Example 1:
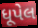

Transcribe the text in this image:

ધૂપેલ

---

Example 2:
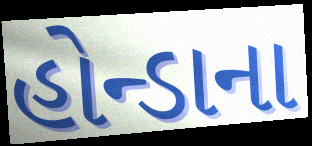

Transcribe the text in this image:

હોન્ડાના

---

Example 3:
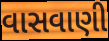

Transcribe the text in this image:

વાસવાણી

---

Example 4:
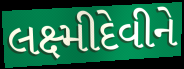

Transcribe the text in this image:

લક્ષ્મીદેવીને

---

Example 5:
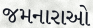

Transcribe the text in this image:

જમનારાઓ